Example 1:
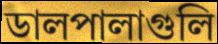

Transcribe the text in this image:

ডালপালাগুলি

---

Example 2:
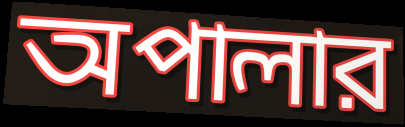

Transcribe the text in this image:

অপালার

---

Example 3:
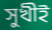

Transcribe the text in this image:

সুখীই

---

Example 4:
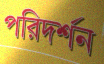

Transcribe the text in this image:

পরিদর্শন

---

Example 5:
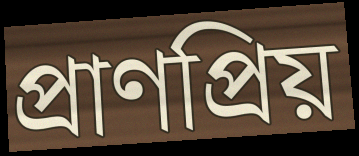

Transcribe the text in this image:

প্রাণপ্রিয়